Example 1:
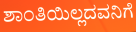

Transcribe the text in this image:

ಶಾಂತಿಯಿಲ್ಲದವನಿಗೆ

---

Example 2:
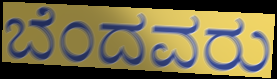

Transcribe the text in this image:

ಬೆಂದವರು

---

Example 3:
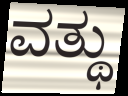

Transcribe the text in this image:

ವತ್ಥು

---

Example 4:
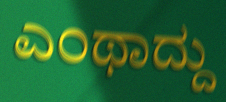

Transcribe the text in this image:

ಎಂಥಾದ್ದು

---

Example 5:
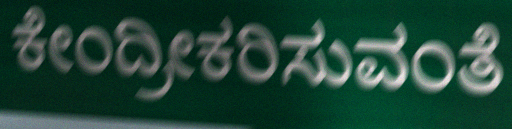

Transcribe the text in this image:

ಕೇಂದ್ರೀಕರಿಸುವಂತೆ